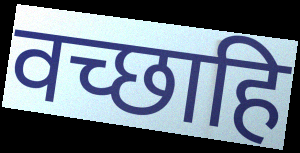
वच्छाहि